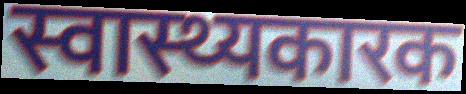
स्वास्थ्यकारक